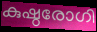
കുഷ്ഠരോഗി